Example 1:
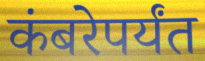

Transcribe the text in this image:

कंबरेपर्यंत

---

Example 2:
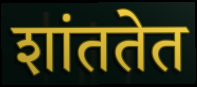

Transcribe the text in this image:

शांततेत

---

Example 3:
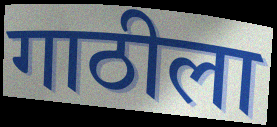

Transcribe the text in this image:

गाठीला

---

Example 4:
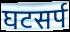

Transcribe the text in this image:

घटसर्प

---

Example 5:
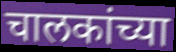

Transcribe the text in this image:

चालकांच्या